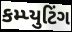
કમ્પ્યુટિંગ